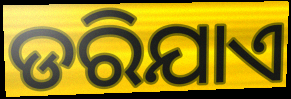
ଡରିଯାଏ